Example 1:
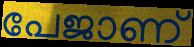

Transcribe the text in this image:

പേജാണ്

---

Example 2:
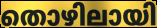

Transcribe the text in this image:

തൊഴിലായി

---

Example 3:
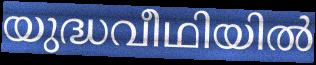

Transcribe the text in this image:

യുദ്ധവീഥിയിൽ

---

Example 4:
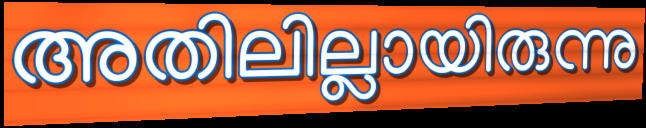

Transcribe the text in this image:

അതിലില്ലായിരുന്നു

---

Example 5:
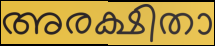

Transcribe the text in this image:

അരക്ഷിതാ